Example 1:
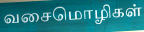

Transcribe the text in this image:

வசைமொழிகள்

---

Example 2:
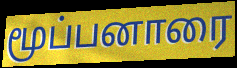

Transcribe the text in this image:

மூப்பனாரை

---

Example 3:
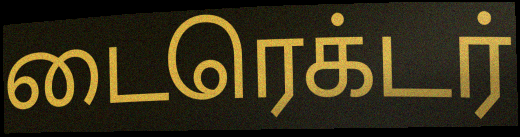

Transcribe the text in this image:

டைரெக்டர்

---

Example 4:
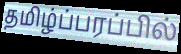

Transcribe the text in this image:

தமிழ்ப்பரப்பில்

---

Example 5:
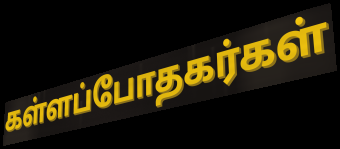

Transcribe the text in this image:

கள்ளப்போதகர்கள்